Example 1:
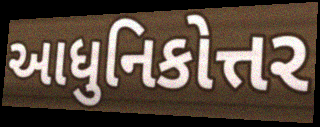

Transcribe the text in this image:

આધુનિકોત્તર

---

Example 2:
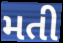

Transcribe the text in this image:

મતી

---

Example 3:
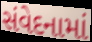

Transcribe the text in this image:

સંવેદનામાં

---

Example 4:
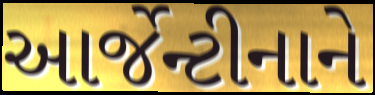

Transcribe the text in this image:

આર્જેન્ટીનાને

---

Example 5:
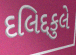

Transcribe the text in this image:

દલિદ્દકુલે